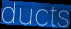
ducts